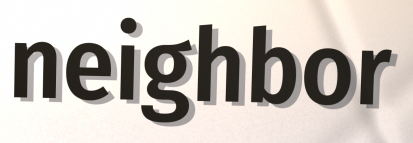
neighbor